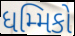
ધમ્મિકો